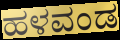
ಹಳವಂಡ